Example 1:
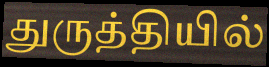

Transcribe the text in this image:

துருத்தியில்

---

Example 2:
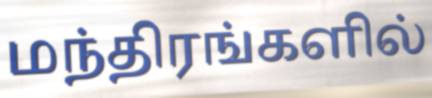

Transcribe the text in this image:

மந்திரங்களில்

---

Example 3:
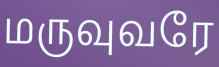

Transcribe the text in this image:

மருவுவரே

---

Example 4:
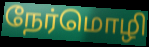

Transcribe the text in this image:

நேர்மொழி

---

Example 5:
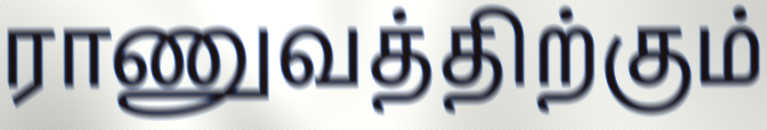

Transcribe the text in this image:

ராணுவத்திற்கும்